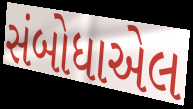
સંબોધાએલ